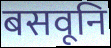
बसवूनि